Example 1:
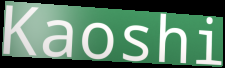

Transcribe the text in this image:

Kaoshi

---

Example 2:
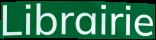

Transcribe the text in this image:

Librairie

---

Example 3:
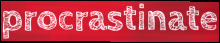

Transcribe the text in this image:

procrastinate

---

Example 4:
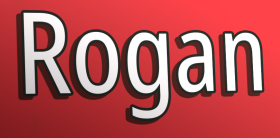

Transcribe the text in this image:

Rogan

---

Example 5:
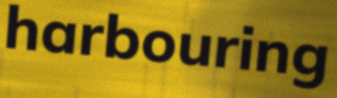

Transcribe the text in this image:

harbouring